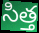
సిత్త